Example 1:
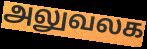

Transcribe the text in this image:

அலுவலக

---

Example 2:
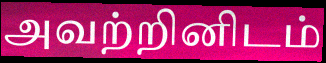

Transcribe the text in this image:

அவற்றினிடம்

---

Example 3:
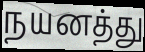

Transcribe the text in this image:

நயனத்து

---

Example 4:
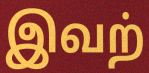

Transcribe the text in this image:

இவற்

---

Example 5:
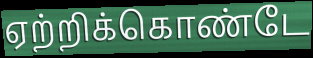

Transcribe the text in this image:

ஏற்றிக்கொண்டே